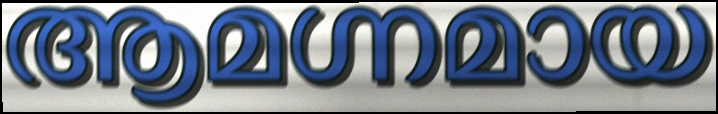
ആമഗ്നമായ